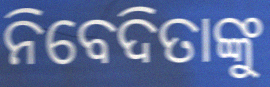
ନିବେଦିତାଙ୍କୁ